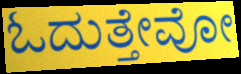
ಓದುತ್ತೇವೋ